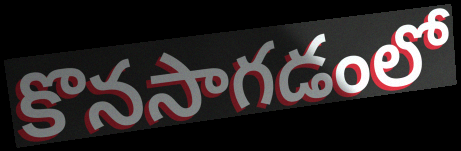
కొనసాగడంలో